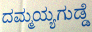
ದಮ್ಮಯ್ಯಗುಡ್ಡೆ